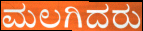
ಮಲಗಿದರು